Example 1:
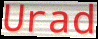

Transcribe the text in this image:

Urad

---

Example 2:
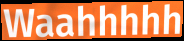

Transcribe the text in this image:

Waahhhhh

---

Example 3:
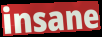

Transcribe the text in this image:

insane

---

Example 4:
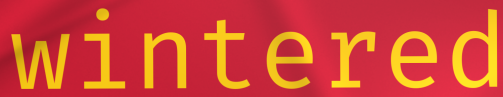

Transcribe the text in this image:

wintered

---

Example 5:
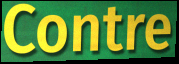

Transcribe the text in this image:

Contre